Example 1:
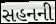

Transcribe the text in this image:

સહનની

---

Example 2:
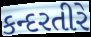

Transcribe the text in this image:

કન્દરતીરે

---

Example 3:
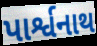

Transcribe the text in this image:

પાર્શ્વનાથ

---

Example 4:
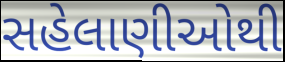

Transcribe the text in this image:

સહેલાણીઓથી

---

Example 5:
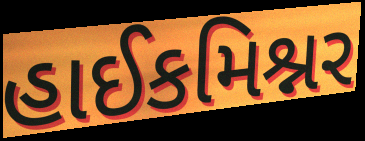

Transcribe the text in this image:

હાઈકમિશ્નર